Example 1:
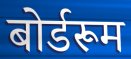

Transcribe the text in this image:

बोर्डरूम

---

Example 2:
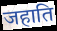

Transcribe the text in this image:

जहाति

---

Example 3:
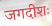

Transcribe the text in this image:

जगदीशः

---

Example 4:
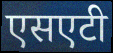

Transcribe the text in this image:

एसएटी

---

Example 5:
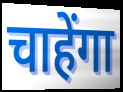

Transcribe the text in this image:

चाहेंगा